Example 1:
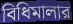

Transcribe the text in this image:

বিধিমালার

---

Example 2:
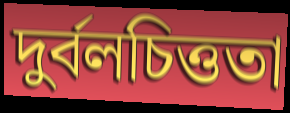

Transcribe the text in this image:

দুর্বলচিত্ততা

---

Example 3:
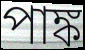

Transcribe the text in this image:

পাঙ্ক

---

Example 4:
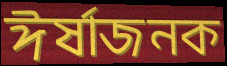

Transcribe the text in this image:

ঈর্ষাজনক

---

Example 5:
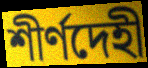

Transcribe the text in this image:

শীর্ণদেহী